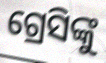
ଗ୍ରେସିଙ୍କୁ